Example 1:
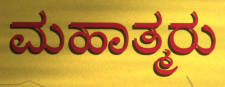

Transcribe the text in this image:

ಮಹಾತ್ಮರು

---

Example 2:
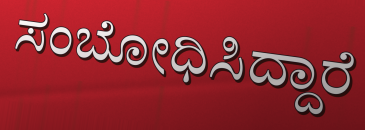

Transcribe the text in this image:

ಸಂಬೋಧಿಸಿದ್ದಾರೆ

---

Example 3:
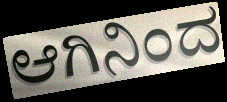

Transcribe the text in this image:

ಆಗಿನಿಂದ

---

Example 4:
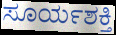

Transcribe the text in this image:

ಸೂರ್ಯಶಕ್ತಿ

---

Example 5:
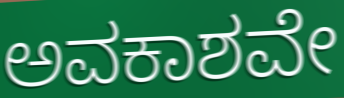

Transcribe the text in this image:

ಅವಕಾಶವೇ